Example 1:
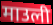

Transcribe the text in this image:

माउली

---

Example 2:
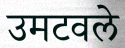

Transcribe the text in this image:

उमटवले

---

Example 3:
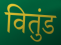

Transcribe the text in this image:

वितुंड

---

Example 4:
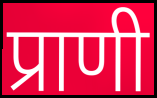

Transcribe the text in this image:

प्राणी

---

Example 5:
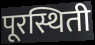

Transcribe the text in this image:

पूरस्थिती